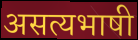
असत्यभाषी